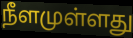
நீளமுள்ளது